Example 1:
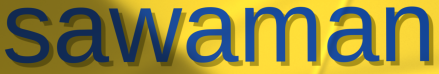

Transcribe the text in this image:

sawaman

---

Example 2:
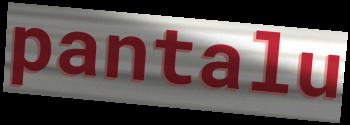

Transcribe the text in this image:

pantalu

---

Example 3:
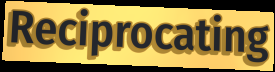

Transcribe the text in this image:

Reciprocating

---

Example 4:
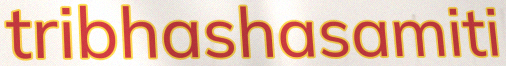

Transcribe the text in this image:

tribhashasamiti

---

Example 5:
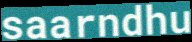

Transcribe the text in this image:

saarndhu